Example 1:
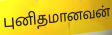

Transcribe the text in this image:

புனிதமானவன்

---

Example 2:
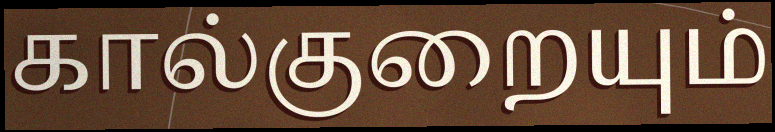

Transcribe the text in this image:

கால்குறையும்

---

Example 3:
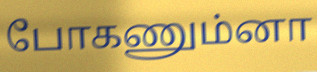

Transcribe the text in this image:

போகணும்னா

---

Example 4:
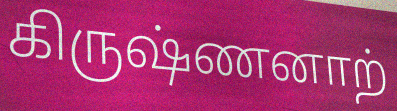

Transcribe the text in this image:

கிருஷ்ணனாற்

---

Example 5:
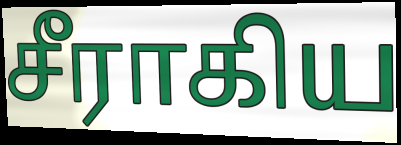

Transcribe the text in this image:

சீராகிய